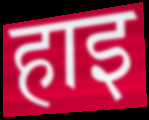
हाइ